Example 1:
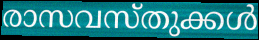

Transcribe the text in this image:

രാസവസ്തുക്കൾ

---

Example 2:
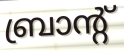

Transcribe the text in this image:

ബ്രാന്റ്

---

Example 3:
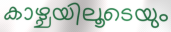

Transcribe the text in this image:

കാഴ്ചയിലൂടെയും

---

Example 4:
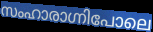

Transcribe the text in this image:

സംഹാരാഗ്നിപോലെ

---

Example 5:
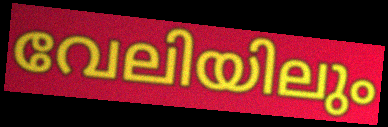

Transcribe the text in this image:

വേലിയിലും